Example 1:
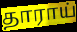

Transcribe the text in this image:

தாராய்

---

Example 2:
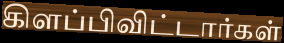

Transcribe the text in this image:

கிளப்பிவிட்டார்கள்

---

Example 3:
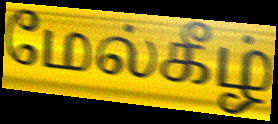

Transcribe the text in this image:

மேல்கீழ்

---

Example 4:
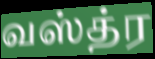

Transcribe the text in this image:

வஸ்த்ர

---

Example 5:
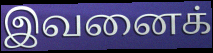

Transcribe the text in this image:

இவனைக்